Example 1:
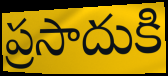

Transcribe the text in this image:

ప్రసాదుకి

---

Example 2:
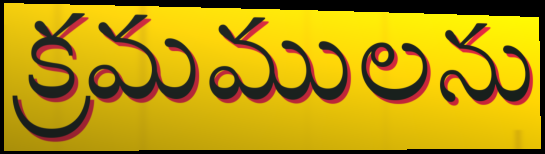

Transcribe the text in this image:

క్రమములను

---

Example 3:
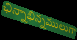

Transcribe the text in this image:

ఛిన్నాభిన్నములుగా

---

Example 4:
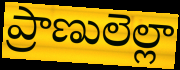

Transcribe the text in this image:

ప్రాణులెల్లా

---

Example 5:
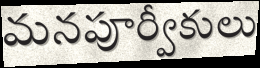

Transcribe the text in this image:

మనపూర్వీకులు